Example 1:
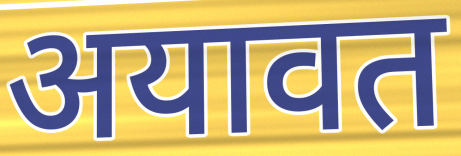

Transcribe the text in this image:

अयावत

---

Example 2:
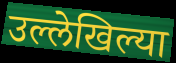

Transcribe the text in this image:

उल्लेखिल्या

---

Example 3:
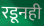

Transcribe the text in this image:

रडूनही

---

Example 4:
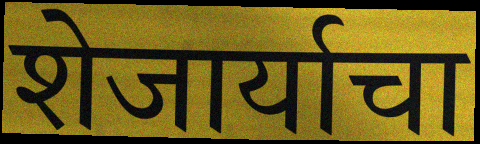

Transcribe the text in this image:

शेजार्याचा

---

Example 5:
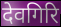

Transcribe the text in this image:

देवगिरि